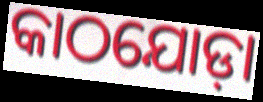
କାଠଯୋଡ଼ା